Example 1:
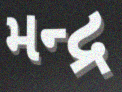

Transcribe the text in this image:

મન્દ્ર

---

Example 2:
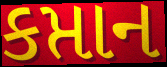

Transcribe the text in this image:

કપ્તાન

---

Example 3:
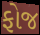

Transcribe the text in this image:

ફોજ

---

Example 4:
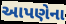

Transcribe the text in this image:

આપણેના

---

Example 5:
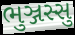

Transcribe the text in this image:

ભુઞ્જસ્સુ